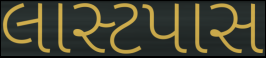
લાસ્ટપાસ